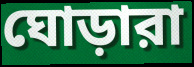
ঘোড়ারা